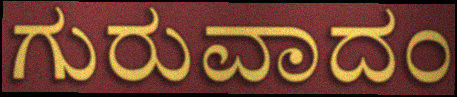
ಗುರುವಾದಂ